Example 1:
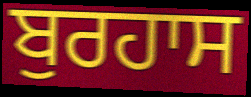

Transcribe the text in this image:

ਬੁਰਹਾਸ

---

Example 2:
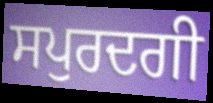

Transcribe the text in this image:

ਸਪੁਰਦਗੀ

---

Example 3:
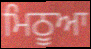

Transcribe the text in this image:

ਮਿਠੂਆ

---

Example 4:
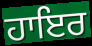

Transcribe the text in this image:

ਹਾਇਰ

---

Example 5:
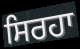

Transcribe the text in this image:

ਸਿਰਹਾ